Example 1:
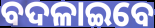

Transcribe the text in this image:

ବଦଳାଇବେ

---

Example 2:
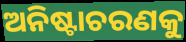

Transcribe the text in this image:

ଅନିଷ୍ଟାଚରଣକୁ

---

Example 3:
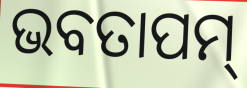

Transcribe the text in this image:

ଭବତାପମ୍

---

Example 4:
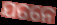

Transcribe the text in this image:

ଯତନେ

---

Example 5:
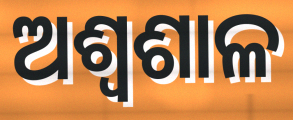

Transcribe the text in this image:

ଅଶ୍ୱଶାଳ